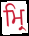
ਮ੍ਰਿ